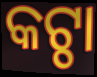
କଟ୍ଠା